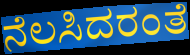
ನೆಲಸಿದರಂತೆ